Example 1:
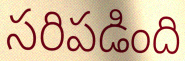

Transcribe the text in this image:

సరిపడింది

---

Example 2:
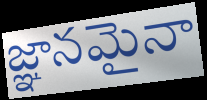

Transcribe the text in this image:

జ్ఞానమైనా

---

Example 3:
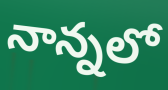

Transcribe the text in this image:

నాన్నలో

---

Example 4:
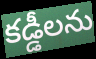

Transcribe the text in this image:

కడ్డీలను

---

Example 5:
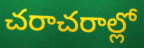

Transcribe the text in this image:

చరాచరాల్లో